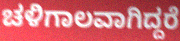
ಚಳಿಗಾಲವಾಗಿದ್ದರೆ